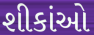
શીકાંઓ